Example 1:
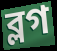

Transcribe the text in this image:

ব্লগ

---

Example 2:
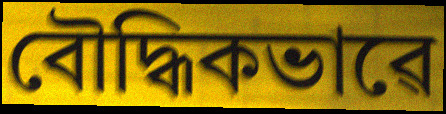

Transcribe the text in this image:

বৌদ্ধিকভাৱে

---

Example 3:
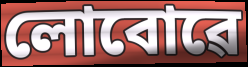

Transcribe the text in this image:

লোবোৱে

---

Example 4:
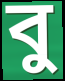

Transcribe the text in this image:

বু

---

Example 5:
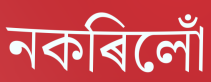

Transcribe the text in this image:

নকৰিলোঁ